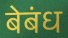
बेबंध